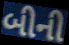
બીની